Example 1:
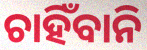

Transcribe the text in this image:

ଚାହିଁବାନି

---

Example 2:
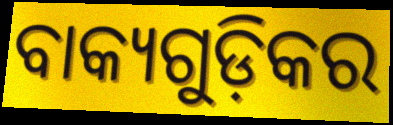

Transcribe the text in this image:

ବାକ୍ୟଗୁଡ଼ିକର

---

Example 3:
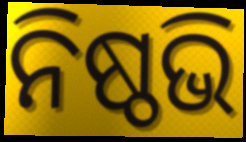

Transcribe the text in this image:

ନିଷ୍ଠଭି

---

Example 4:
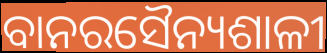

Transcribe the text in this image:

ବାନରସୈନ୍ୟଶାଳୀ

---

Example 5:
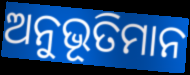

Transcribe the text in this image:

ଅନୁଭୂତିମାନ